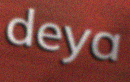
deya